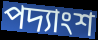
পদ্যাংশ